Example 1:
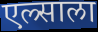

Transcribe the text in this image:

एल्साला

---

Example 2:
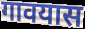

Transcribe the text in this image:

गावयास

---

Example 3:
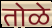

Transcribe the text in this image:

तोळे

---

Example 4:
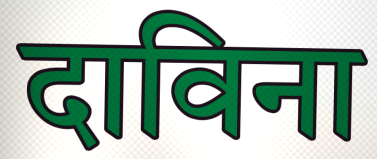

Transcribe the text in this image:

दाविना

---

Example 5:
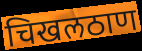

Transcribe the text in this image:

चिखलठाण